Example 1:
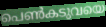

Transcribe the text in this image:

പെൺകടുവയെ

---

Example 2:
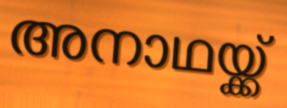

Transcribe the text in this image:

അനാഥയ്ക്ക്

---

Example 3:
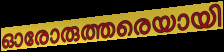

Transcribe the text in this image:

ഓരോരുത്തരെയായി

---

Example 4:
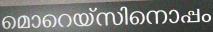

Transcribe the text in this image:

മൊറെയ്സിനൊപ്പം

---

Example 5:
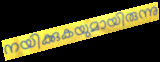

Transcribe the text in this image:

നയിക്കുകയുമായിരുന്നു